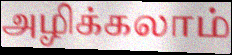
அழிக்கலாம்